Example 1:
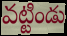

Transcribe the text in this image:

వట్టిండు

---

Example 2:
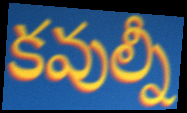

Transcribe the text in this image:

కవుల్నీ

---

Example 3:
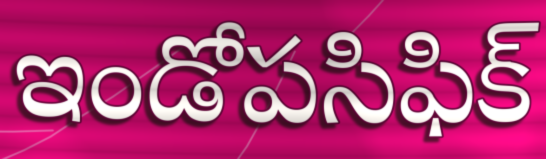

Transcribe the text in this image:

ఇండోపసిఫిక్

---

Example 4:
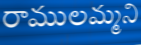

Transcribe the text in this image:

రాములమ్మని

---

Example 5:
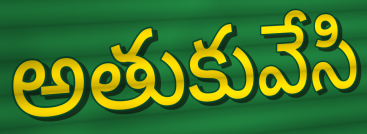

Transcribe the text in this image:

అతుకువేసి